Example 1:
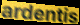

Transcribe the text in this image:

ardentis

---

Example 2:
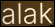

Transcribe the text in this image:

alak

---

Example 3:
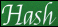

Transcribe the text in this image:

Hash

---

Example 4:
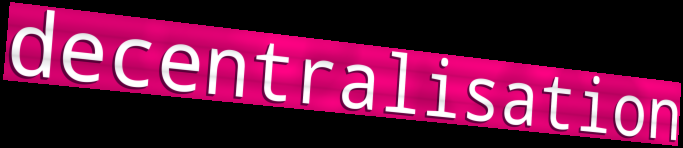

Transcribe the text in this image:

decentralisation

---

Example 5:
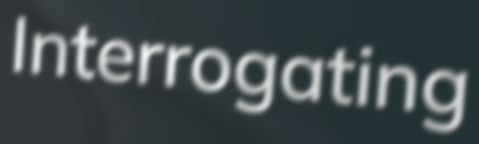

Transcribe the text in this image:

Interrogating